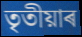
তৃতীয়াৰ